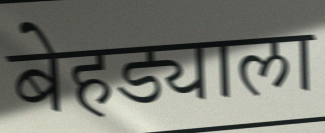
बेहड्याला